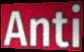
Anti